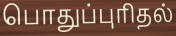
பொதுப்புரிதல்